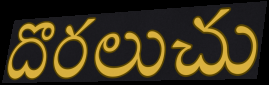
దొరలుచు